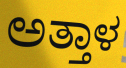
ಅತ್ತಾಳ